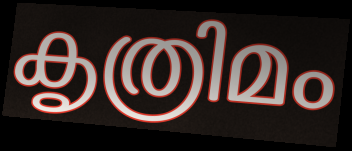
കൃത്രിമം